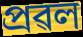
প্ৰৱল